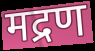
मद्रण